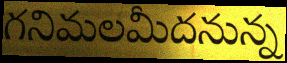
గనిమలమీదనున్న